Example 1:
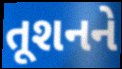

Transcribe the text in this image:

તૂશનને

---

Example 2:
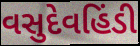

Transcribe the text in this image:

વસુદેવહિંડી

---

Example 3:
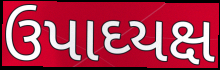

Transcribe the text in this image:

ઉપાઘ્યક્ષ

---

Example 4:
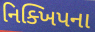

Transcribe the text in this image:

નિક્ખિપના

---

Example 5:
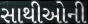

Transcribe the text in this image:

સાથીઓની